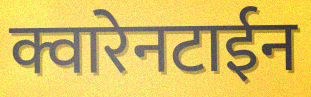
क्वारेनटाईन